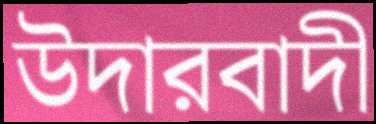
উদারবাদী